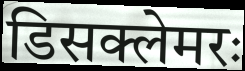
डिसक्लेमरः